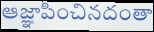
ఆజ్ఞాపించినదంతా